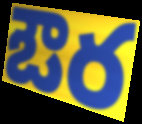
ఔర